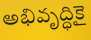
అభివృద్ధికై